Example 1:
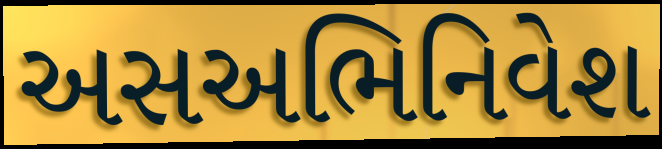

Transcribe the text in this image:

અસઅભિનિવેશ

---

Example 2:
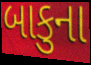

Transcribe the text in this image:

બાકુના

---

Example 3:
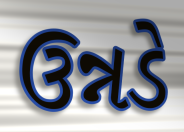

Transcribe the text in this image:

ઉન્નડે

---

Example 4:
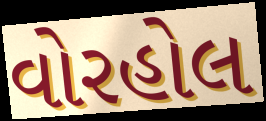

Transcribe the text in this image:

વોરહોલ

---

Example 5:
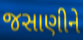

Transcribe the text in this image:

જસાણીને